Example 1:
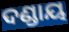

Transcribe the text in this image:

ଦଣ୍ଡାୟ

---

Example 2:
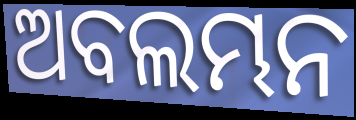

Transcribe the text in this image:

ଅବଲମ୍ଭନ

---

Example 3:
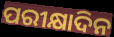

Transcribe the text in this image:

ପରୀକ୍ଷାଦିନ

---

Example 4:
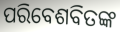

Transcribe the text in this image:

ପରିବେଶବିତଙ୍କ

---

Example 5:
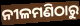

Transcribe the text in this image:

ନୀଳମଣିଠାରୁ